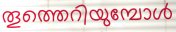
തൂത്തെറിയുമ്പോൾ